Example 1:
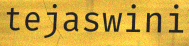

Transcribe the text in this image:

tejaswini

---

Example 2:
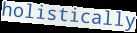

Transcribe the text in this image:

holistically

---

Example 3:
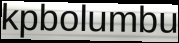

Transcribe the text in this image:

kpbolumbu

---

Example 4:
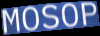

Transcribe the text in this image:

MOSOP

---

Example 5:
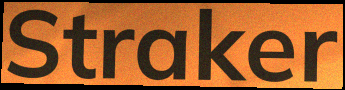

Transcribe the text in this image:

Straker